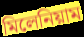
মিলেনিয়াম